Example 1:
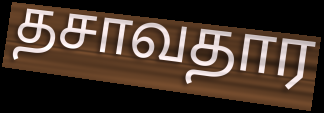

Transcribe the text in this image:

தசாவதார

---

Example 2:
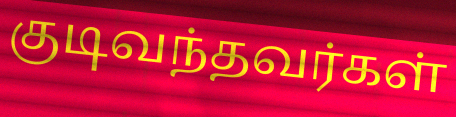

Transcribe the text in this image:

குடிவந்தவர்கள்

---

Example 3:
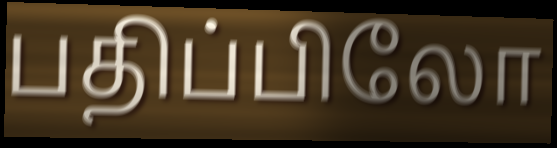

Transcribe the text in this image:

பதிப்பிலோ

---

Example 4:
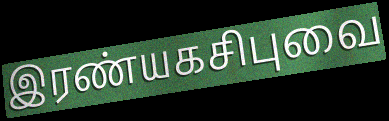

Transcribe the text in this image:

இரண்யகசிபுவை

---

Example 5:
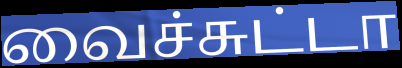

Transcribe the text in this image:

வைச்சுட்டா